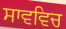
ਸਾਵਵਿਚ